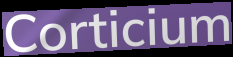
Corticium